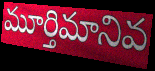
మూర్తిమానివ